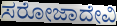
ಸರೋಜಾದೇವಿ